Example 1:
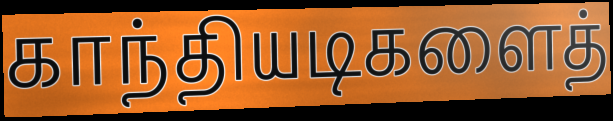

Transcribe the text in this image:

காந்தியடிகளைத்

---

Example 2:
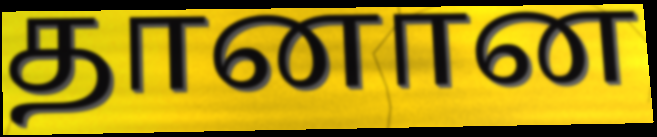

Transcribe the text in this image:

தானான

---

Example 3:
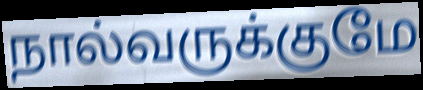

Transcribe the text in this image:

நால்வருக்குமே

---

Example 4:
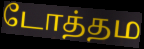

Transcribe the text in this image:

டோத்தம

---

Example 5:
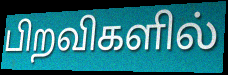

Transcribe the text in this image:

பிறவிகளில்